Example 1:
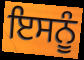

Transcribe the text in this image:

ਇਸਨੂੰ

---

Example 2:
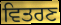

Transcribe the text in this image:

ਵਿਤਰਣ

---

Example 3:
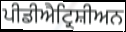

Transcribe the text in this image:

ਪੀਡੀਐਟ੍ਰਿਸ਼ੀਅਨ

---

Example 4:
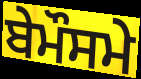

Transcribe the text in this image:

ਬੇਮੌਸਮੇ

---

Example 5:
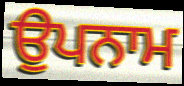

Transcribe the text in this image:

ਉਪਨਾਮ